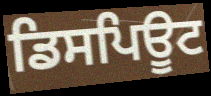
ਡਿਸਪਿਊਟ